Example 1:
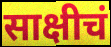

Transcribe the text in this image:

साक्षीचं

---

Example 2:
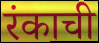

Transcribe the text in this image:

रंकाची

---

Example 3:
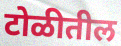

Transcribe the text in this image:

टोळीतील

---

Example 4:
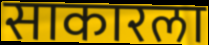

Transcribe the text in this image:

साकारला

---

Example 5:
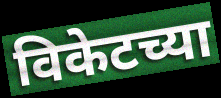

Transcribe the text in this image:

विकेटच्या